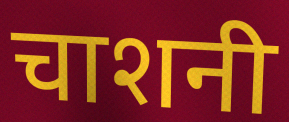
चाशनी